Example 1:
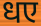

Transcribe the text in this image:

धए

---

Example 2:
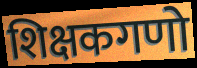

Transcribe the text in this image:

शिक्षकगणो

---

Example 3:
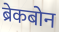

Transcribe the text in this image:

ब्रेकबोन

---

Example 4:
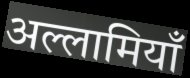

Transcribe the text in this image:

अल्लामियाँ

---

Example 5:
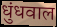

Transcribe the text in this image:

धुंधवाल